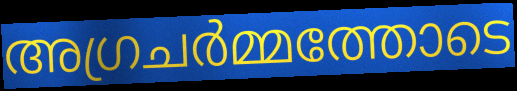
അഗ്രചർമ്മത്തോടെ